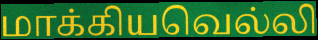
மாக்கியவெல்லி